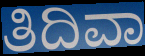
ತಿದಿವಾ